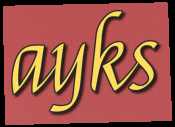
ayks